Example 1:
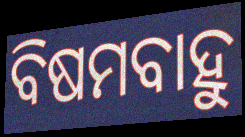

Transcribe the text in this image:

ବିଷମବାହୁ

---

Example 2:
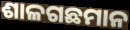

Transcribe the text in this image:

ଶାଳଗଛମାନ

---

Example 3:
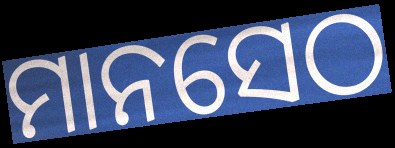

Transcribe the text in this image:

ମାନସେଠ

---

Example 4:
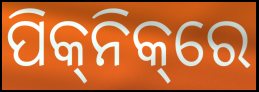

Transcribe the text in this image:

ପିକ୍‌ନିକ୍‌ରେ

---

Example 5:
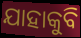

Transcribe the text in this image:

ଯାହାକୁବି